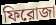
ফিরোজা